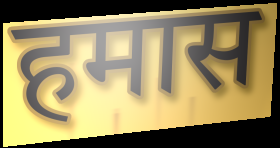
हमास